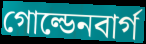
গোল্ডেনবার্গ